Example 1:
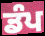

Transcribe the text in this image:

ਡੰਪ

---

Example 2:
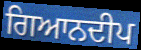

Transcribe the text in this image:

ਗਿਆਨਦੀਪ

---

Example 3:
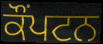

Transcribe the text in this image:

ਕੌਂਪਟਨ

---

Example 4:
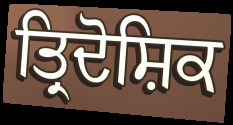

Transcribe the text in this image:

ਤ੍ਰਿਦੋਸ਼ਿਕ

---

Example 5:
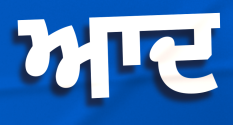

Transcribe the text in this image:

ਆਦ